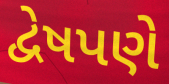
દ્વેષપણે